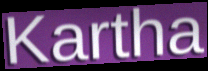
Kartha